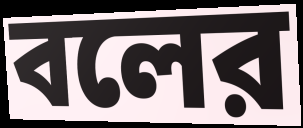
বলের